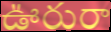
ఊరురా